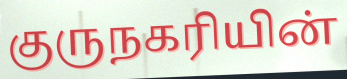
குருநகரியின்